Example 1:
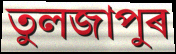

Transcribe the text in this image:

তুলজাপুৰ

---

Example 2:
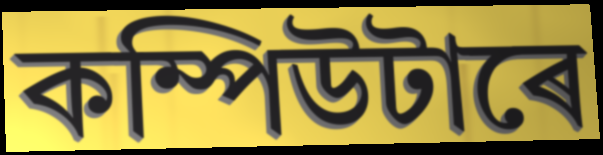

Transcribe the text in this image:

কম্পিউটাৰে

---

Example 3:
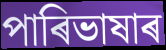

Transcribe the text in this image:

পাৰিভাষাৰ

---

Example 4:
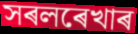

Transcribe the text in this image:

সৰলৰেখাৰ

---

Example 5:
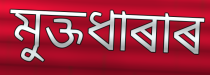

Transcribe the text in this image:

মুক্তধাৰাৰ